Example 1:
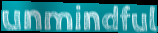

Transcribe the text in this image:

unmindful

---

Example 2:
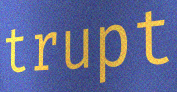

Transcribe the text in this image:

trupt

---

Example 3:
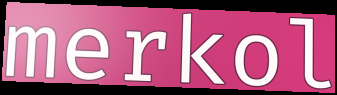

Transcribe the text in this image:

merkol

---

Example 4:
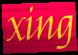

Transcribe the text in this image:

xing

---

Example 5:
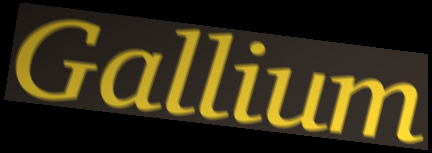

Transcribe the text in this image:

Gallium